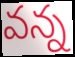
వన్న